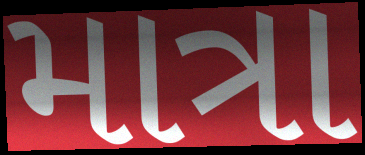
માત્રા